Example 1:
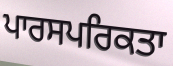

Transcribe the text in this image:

ਪਾਰਸਪਰਿਕਤਾ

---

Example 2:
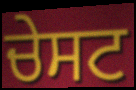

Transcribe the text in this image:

ਚੇਸਟ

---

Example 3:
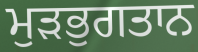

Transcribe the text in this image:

ਮੁੜਭੁਗਤਾਨ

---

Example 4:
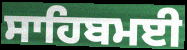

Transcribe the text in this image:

ਸਾਹਿਬਮਈ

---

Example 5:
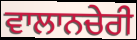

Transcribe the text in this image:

ਵਾਲਾਨਚੇਰੀ